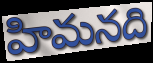
హిమనది